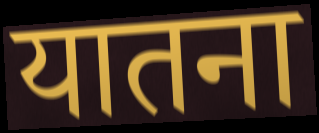
यातना